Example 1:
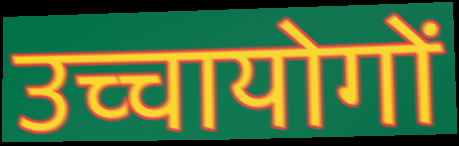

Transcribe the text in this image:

उच्‍चायोगों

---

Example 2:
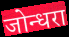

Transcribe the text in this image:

जोन्धरा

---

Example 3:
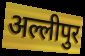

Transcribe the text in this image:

अल्लीपुर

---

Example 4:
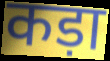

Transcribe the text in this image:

कड़ा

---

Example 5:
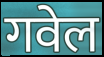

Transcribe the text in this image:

गवेल